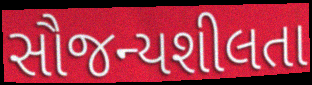
સૌજન્યશીલતા